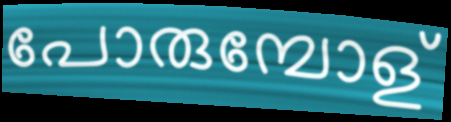
പോരുമ്പോള്